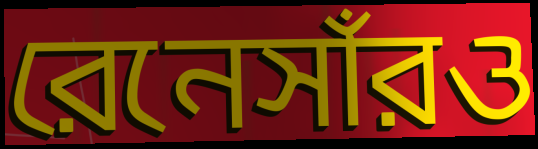
রেনেসাঁরও